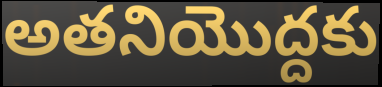
అతనియొద్దకు